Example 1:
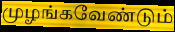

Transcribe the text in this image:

முழங்கவேண்டும்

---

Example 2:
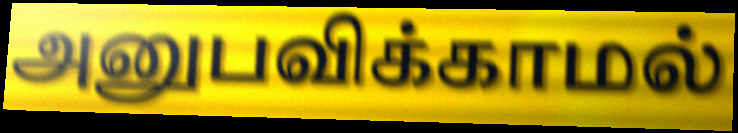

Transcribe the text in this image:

அனுபவிக்காமல்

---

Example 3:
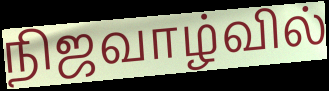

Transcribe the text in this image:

நிஜவாழ்வில்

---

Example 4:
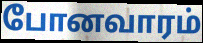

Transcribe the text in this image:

போனவாரம்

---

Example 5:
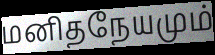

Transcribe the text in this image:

மனிதநேயமும்